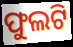
ଫୁଲଟି